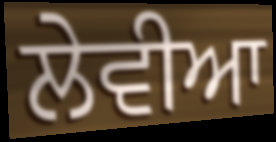
ਲੇਵੀਆ